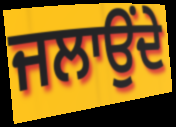
ਜਲਾਉਂਦੇ